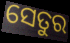
ସେତୁର